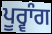
ਪੂਰ੍ਵਾੰਗ